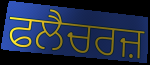
ਫਲੈਚਰਜ਼